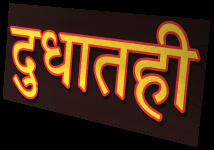
दुधातही